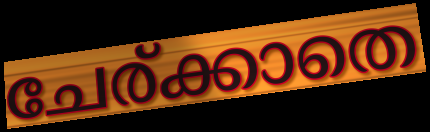
ചേര്ക്കാതെ